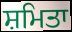
ਸ਼ਮਿਤਾ